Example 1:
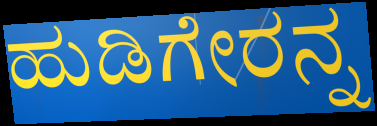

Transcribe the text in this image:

ಹುಡಿಗೇರನ್ನ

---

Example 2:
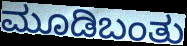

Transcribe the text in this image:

ಮೂಡಿಬಂತು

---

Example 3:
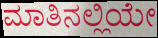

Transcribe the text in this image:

ಮಾತಿನಲ್ಲಿಯೇ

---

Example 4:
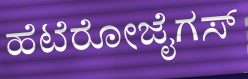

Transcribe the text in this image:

ಹೆಟೆರೋಜೈಗಸ್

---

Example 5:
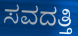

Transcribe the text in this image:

ಸವದತ್ತಿ